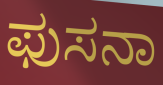
ಫುಸನಾ